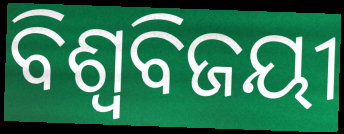
ବିଶ୍ଵବିଜୟୀ